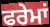
ਫਰੇਮਾਂ